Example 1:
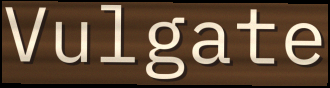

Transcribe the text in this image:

Vulgate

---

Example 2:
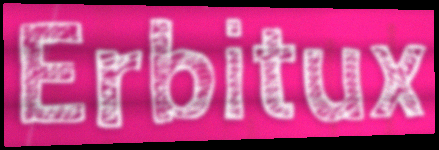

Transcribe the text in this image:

Erbitux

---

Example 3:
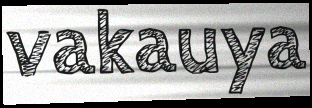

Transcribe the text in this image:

vakauya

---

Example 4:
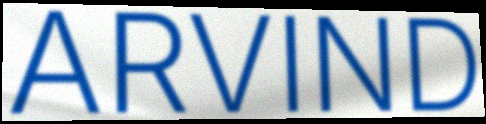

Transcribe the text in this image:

ARVIND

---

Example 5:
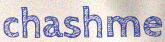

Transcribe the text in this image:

chashme